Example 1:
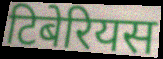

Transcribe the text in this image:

टिबेरियस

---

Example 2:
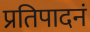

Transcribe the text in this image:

प्रतिपादनं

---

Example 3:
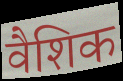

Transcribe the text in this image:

वैशिक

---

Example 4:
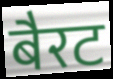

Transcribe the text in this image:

बैरट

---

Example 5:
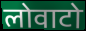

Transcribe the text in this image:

लोवाटो